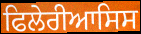
ਫਿਲੇਰੀਆਸਿਸ